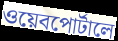
ওয়েবপোর্টালে